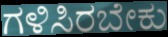
ಗಳಿಸಿರಬೇಕು